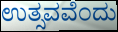
ಉತ್ಸವವೆಂದು